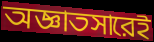
অজ্ঞাতসারেই